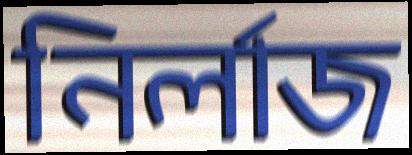
নির্লাজ